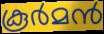
കൂർമൻ